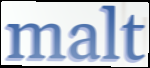
malt